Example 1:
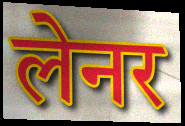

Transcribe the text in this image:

लेनर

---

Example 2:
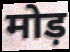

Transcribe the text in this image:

मोड़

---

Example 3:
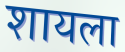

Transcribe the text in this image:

शायला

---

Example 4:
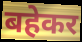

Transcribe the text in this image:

बहेकर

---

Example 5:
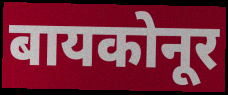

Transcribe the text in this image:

बायकोनूर